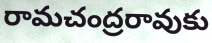
రామచంద్రరావుకు